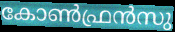
കോൺഫ്രൻസു